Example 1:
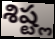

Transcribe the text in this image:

శిష్ట్ల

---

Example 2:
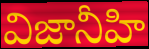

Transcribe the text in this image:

విజానీహి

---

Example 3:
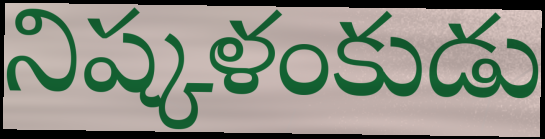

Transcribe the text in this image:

నిష్కళంకుడు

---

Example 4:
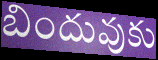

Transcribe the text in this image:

బిందువుకు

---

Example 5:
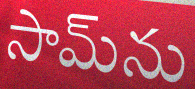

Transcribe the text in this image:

సామ్‌ను